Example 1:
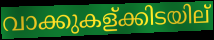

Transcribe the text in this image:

വാക്കുകള്ക്കിടയില്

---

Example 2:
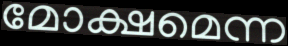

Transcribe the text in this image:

മോക്ഷമെന്ന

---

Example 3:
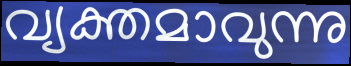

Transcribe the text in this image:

വ്യക്തമാവുന്നു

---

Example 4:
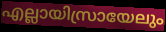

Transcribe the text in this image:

എല്ലായിസ്രായേലും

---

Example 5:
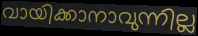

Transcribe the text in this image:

വായിക്കാനാവുന്നില്ല